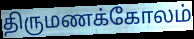
திருமணக்கோலம்